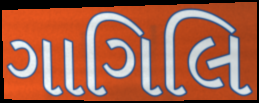
ગાગિલિ